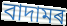
বাদামৰ